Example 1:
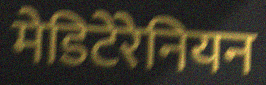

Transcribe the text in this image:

मेडिटेरेनियन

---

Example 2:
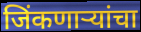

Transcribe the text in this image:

जिंकणाऱ्यांचा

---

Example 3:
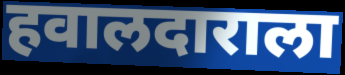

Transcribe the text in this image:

हवालदाराला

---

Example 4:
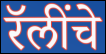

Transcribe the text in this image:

रॅलींचे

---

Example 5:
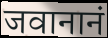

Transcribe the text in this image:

जवानानं